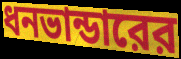
ধনভান্ডারের